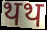
थथ